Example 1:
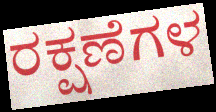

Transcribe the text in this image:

ರಕ್ಷಣೆಗಳ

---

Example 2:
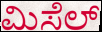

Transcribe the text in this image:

ಮಿಸೆಲ್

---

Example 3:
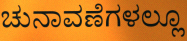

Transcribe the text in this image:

ಚುನಾವಣೆಗಳಲ್ಲೂ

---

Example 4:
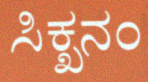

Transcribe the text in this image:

ಸಿಕ್ಖನಂ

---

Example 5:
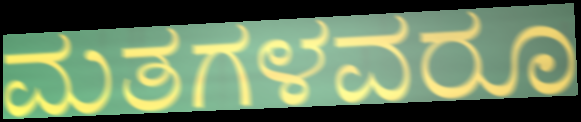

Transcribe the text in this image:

ಮತಗಳವರೂ